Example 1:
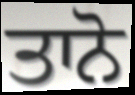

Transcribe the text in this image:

ਤਾਨੋ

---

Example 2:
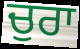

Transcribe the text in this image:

ਚੁਰਾ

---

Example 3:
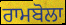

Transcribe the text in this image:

ਰਾਮਬੋਲਾ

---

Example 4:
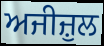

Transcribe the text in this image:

ਅਜੀਜ਼ੁਲ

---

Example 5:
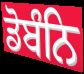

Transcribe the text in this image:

ਡੋਬੰਨਿ